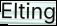
Elting